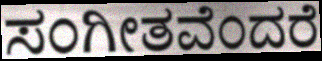
ಸಂಗೀತವೆಂದರೆ